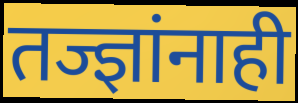
तज्ज्ञांनाही